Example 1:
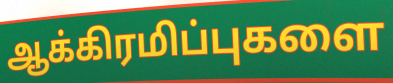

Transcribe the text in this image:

ஆக்கிரமிப்புகளை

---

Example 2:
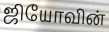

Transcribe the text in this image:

ஜியோவின்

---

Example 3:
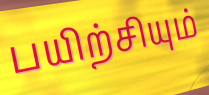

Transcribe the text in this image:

பயிற்சியும்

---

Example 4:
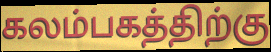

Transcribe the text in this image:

கலம்பகத்திற்கு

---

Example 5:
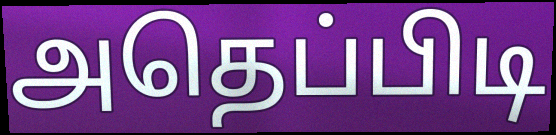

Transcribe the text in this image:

அதெப்பிடி